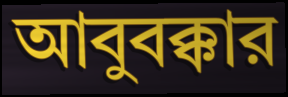
আবুবক্কার